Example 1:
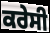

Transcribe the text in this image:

ਕਰੇਸੀ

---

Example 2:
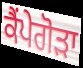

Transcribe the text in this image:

ਕੈਂਪੇਗੋੜਾ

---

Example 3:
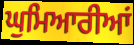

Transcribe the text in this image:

ਘੁਮਿਆਰੀਆਂ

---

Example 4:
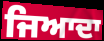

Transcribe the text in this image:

ਜਿਆਦਾ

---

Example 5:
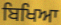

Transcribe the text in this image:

ਬਿਖਿਆ